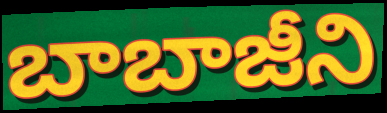
బాబాజీని